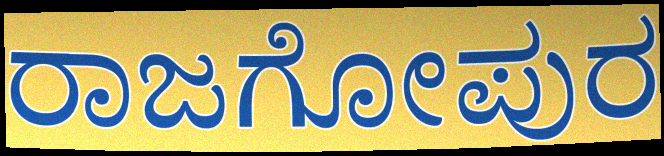
ರಾಜಗೋಪುರ